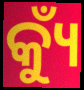
କ୍ୟୁଁ